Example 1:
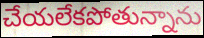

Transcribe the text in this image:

చేయలేకపోతున్నాను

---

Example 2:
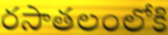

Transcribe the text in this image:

రసాతలంలోకి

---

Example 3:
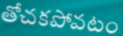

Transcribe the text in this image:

తోచకపోవటం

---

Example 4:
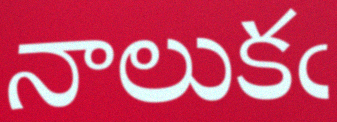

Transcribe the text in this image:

నాలుకఁ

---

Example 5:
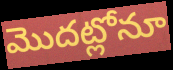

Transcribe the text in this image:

మొదట్లోనూ